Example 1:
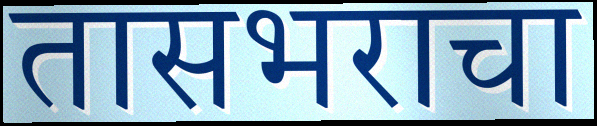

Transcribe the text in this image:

तासभराचा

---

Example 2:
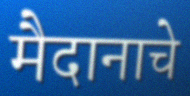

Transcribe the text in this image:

मैदानाचे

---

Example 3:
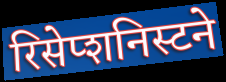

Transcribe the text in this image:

रिसेप्शनिस्टने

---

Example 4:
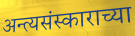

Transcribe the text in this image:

अन्त्यसंस्काराच्या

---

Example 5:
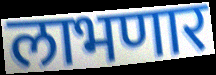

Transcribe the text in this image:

लाभणार